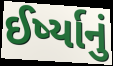
ઈર્ષ્યાનું